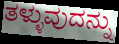
ತಳ್ಳುವುದನ್ನು